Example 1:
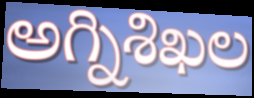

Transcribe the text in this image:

అగ్నిశిఖల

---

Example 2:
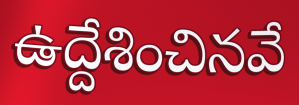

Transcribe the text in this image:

ఉద్దేశించినవే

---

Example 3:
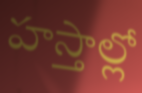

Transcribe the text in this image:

హస్తాల్లో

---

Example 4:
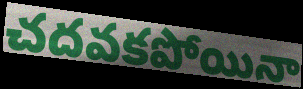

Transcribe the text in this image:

చదవకపోయినా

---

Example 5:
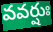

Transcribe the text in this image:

వవర్షుః